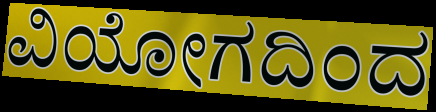
ವಿಯೋಗದಿಂದ